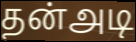
தன்அடி